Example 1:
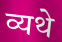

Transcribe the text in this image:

व्यथे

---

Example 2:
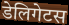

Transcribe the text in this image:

डेलिगेटस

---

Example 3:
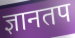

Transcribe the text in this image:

ज्ञानतप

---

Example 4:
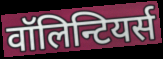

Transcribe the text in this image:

वॉलिन्टियर्स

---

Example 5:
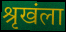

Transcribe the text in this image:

श्रृखंला